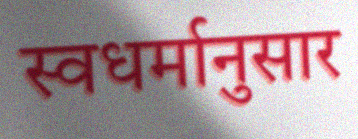
स्वधर्मानुसार